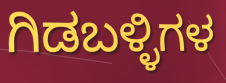
ಗಿಡಬಳ್ಳಿಗಳ